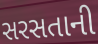
સરસતાની